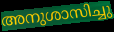
അനുശാസിച്ചു